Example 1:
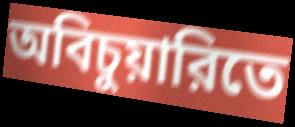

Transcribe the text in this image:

অবিচুয়ারিতে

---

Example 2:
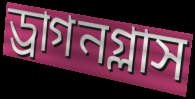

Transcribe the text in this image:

ড্রাগনগ্লাস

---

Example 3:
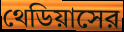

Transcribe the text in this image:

থেডিয়াসের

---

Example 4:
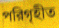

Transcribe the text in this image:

পরিগৃহীত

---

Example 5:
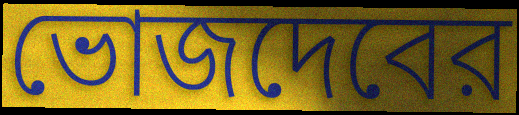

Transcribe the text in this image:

ভোজদেবের